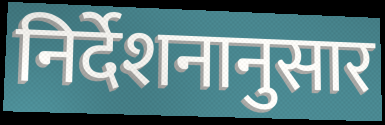
निर्देशनानुसार